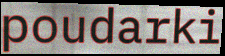
poudarki